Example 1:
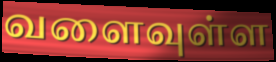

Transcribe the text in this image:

வளைவுள்ள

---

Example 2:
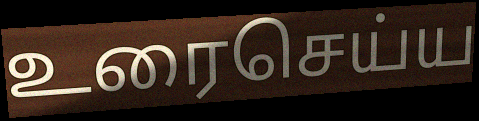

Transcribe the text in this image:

உரைசெய்ய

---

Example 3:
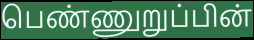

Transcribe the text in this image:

பெண்ணுறுப்பின்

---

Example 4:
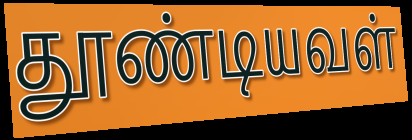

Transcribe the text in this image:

தூண்டியவள்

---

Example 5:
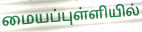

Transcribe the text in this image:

மையப்புள்ளியில்